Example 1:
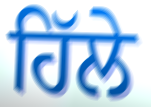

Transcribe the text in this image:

ਹਿੱਲੇ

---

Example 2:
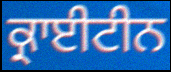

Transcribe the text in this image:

ਕ੍ਰਾਈਟੀਨ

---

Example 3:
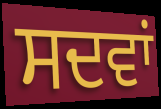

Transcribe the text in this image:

ਸਦਵਾਂ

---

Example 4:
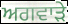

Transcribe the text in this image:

ਅਗਵਾੜੇ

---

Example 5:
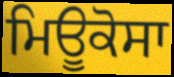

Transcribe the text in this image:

ਮਿਊਕੋਸਾ